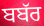
ਬਬੱਰ